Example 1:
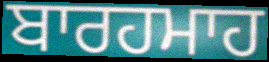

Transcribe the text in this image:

ਬਾਰਹਮਾਹ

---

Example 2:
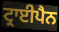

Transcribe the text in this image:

ਟ੍ਰਾਈਪੈਨ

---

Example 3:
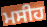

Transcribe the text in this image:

ਮਸੀਹ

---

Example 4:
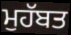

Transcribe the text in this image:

ਮੁਹੱਬਤ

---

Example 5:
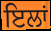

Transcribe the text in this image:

ਇਲਾਂ